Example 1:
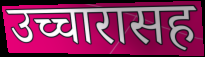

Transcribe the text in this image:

उच्चारासह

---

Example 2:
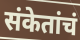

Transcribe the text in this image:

संकेतांचं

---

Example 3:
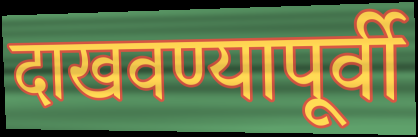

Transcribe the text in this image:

दाखवण्यापूर्वी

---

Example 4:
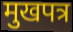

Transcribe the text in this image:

मुखपत्र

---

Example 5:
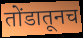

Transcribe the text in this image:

तोंडातूनच